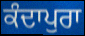
ਕੰਦਾਪੁਰਾ